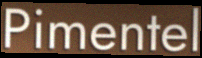
Pimentel